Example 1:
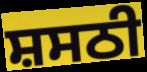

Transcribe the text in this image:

ਸ਼ਸਠੀ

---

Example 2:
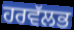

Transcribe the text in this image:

ਹਰਵੱਲਭ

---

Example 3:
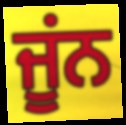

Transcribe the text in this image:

ਜੂਂਨ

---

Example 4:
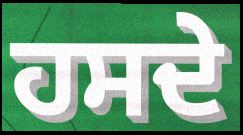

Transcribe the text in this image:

ਹਸਦੇ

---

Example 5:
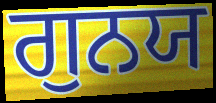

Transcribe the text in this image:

ਗੁਨਯ